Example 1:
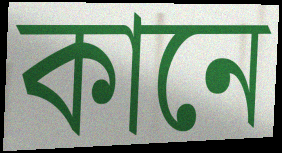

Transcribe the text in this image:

কানে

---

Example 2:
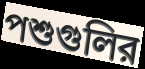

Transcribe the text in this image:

পশুগুলির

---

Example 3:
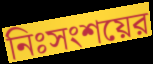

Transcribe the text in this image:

নিঃসংশয়ের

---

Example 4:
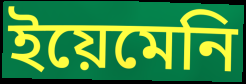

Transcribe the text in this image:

ইয়েমেনি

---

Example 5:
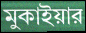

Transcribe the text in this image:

মুকাইয়ার